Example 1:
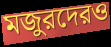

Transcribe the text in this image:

মজুরদেরও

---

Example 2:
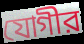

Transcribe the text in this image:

যোগীর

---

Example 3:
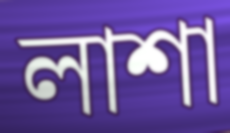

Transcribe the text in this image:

লাশা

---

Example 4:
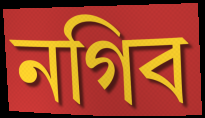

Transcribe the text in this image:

নগিব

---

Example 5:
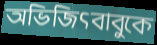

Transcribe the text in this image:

অভিজিৎবাবুকে